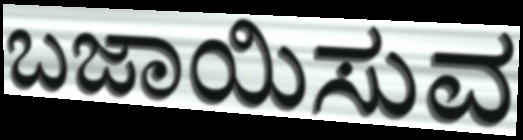
ಬಜಾಯಿಸುವ